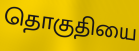
தொகுதியை